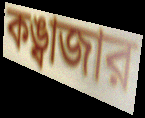
কঙ্বাজার